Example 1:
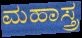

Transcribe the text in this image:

ಮಹಾಸ್ತ್ರ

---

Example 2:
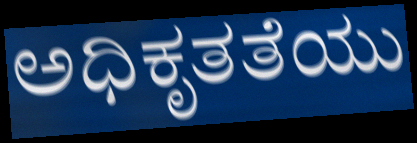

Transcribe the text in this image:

ಅಧಿಕೃತತೆಯು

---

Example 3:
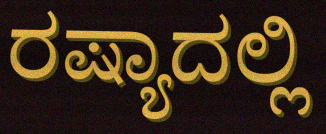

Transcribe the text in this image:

ರಷ್ಯಾದಲ್ಲಿ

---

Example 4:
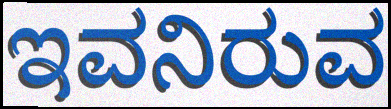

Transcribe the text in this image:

ಇವನಿರುವ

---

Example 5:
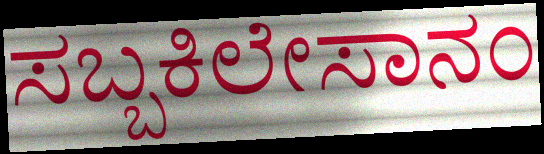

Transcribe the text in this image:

ಸಬ್ಬಕಿಲೇಸಾನಂ